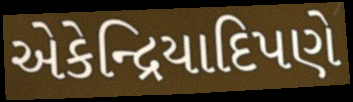
એકેન્દ્રિયાદિપણે